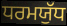
ਧਰਮਯੁੱਧ